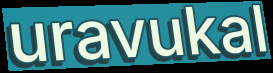
uravukal